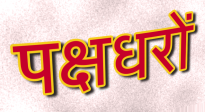
पक्षधरों